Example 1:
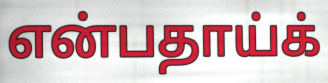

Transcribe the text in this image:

என்பதாய்க்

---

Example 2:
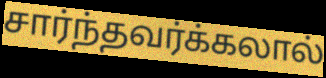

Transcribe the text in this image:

சார்ந்தவர்க்கலால்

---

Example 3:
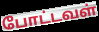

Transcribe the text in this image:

போட்டவள்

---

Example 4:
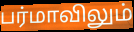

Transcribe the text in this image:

பர்மாவிலும்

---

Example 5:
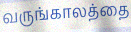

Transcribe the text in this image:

வருங்காலத்தை